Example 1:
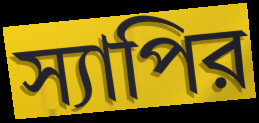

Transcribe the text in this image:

স্যাপির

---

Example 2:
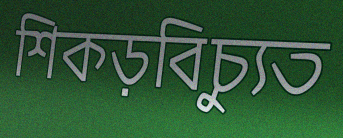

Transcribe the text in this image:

শিকড়বিচ্যুত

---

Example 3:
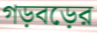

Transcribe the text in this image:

গড়বড়ের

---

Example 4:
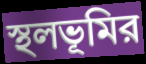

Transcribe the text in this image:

স্থলভূমির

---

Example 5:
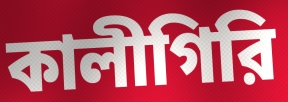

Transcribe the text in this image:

কালীগিরি